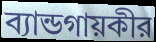
ব্যান্ডগায়কীর